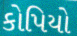
કોપિયો